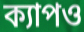
ক্যাপও